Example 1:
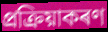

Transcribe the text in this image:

প্ৰক্ৰিয়াকৰণ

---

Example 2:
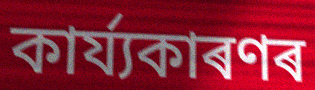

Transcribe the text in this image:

কাৰ্য্যকাৰণৰ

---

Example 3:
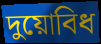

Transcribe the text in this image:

দুয়োবিধ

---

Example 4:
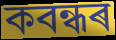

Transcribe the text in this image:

কবন্ধৰ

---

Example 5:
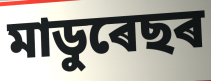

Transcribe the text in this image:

মাডুৰেছৰ